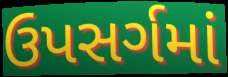
ઉપસર્ગમાં